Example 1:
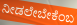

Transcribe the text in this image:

ನೀಡಲೇಬೇಕೆಂಬ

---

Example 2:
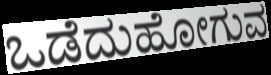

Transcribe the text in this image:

ಒಡೆದುಹೋಗುವ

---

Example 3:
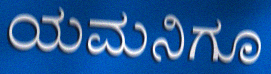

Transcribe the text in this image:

ಯಮನಿಗೂ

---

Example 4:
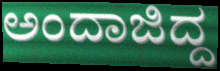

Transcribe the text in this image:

ಅಂದಾಜಿದ್ದ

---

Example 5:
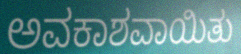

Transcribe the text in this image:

ಅವಕಾಶವಾಯಿತು